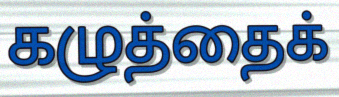
கழுத்தைக்